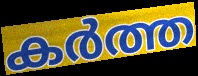
കർത്ത